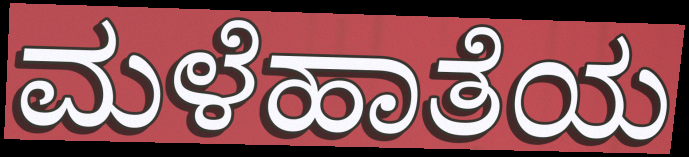
ಮಳೆಹಾತೆಯ